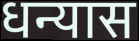
धन्यास